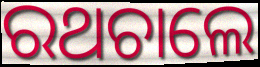
ରଥଚାଲେ